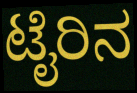
ಟೈರಿನ